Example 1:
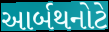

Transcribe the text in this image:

આર્બથનોટે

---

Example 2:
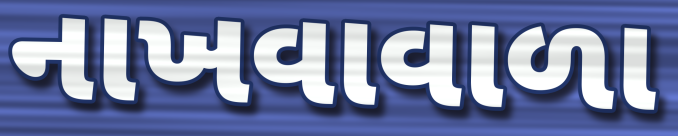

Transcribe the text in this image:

નાખવાવાળા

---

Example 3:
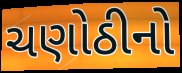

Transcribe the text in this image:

ચણોઠીનો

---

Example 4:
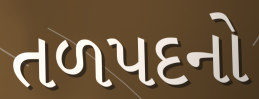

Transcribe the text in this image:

તળપદનો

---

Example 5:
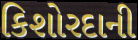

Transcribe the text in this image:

કિશોરદાની